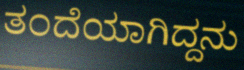
ತಂದೆಯಾಗಿದ್ದನು